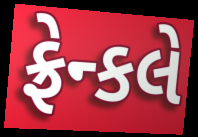
ફ્રેન્કલે